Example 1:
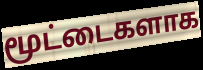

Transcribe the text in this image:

மூட்டைகளாக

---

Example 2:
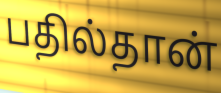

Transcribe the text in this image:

பதில்தான்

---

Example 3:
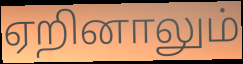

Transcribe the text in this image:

ஏறினாலும்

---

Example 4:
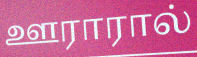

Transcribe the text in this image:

ஊராரால்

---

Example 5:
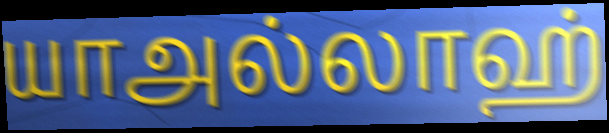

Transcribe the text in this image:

யாஅல்லாஹ்